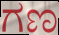
ಗಣ